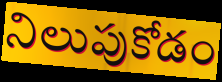
నిలుపుకోడం